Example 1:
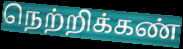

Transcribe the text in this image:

நெற்றிக்கண்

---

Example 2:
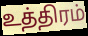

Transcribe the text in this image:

உத்திரம்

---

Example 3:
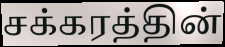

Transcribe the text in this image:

சக்கரத்தின்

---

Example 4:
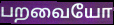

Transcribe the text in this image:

பறவையோ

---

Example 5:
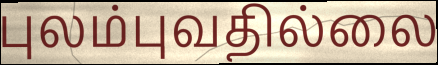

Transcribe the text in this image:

புலம்புவதில்லை